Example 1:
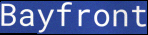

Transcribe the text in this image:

Bayfront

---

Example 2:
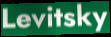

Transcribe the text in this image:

Levitsky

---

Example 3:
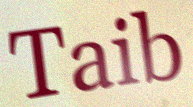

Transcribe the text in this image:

Taib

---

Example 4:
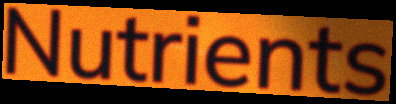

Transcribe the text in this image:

Nutrients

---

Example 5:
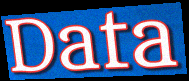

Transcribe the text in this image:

Data